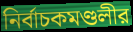
নির্বাচকমণ্ডলীর